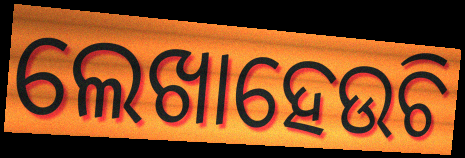
ଲେଖାହେଉଚି